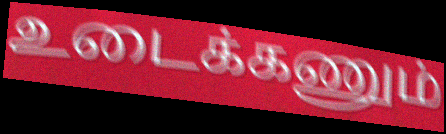
உடைக்கணும்